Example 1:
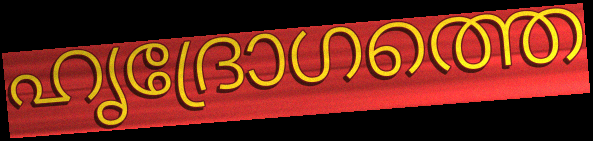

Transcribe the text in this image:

ഹൃദ്രോഗത്തെ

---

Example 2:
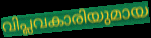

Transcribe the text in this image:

വിപ്ലവകാരിയുമായ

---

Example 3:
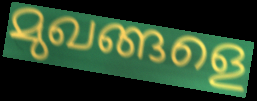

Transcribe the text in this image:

മുഖങ്ങളെ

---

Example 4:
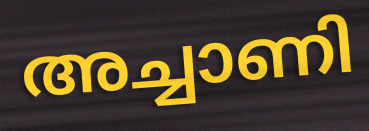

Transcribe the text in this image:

അച്ചാണി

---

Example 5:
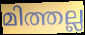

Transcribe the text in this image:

മിത്തല്ല